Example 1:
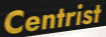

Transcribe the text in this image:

Centrist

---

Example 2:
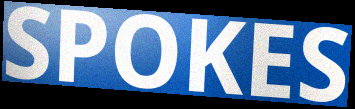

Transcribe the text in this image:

SPOKES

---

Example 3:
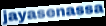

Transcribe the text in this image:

jayasenassa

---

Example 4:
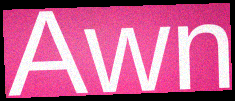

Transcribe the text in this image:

Awn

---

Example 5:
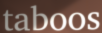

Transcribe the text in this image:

taboos